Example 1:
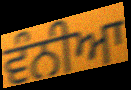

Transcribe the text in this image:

ਵੰਨੀਆ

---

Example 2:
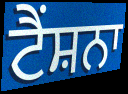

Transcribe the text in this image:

ਟੈਂਸ਼ਨਾ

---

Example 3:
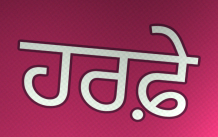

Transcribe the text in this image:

ਹਰਫ਼ੇ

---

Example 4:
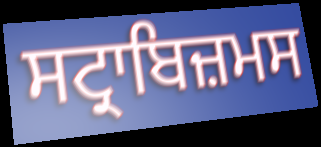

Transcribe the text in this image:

ਸਟ੍ਰਾਬਿਜ਼ਮਸ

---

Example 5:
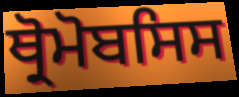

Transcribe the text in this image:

ਥ੍ਰੋਮੋਬਸਿਸ